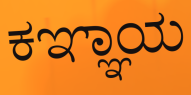
ಕಞ್ಞಾಯ